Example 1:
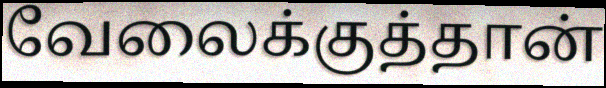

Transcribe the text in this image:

வேலைக்குத்தான்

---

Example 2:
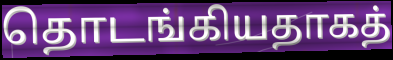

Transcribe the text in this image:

தொடங்கியதாகத்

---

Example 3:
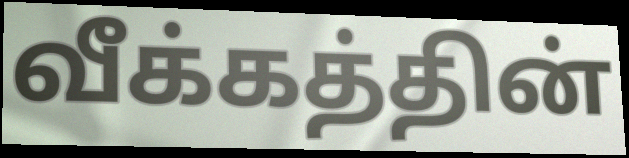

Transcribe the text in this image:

வீக்கத்தின்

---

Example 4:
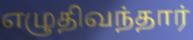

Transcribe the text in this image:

எழுதிவந்தார்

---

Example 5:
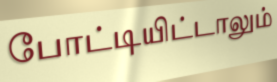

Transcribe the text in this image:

போட்டியிட்டாலும்